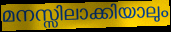
മനസ്സിലാക്കിയാലും